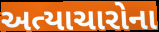
અત્યાચારોના